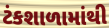
ટંકશાળામાંથી